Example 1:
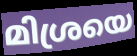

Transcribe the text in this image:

മിശ്രയെ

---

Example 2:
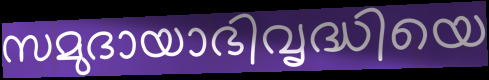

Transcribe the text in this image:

സമുദായാഭിവൃദ്ധിയെ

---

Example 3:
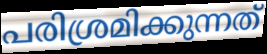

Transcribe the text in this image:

പരിശ്രമിക്കുന്നത്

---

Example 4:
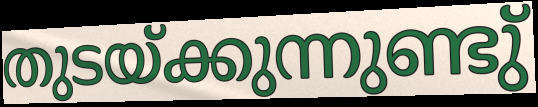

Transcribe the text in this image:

തുടയ്ക്കുന്നുണ്ടു്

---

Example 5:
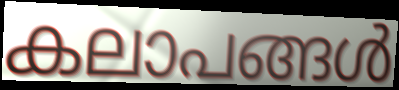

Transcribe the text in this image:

കലാപങ്ങൾ